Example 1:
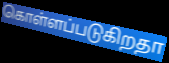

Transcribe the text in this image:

கொள்ளப்படுகிறதா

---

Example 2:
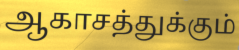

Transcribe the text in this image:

ஆகாசத்துக்கும்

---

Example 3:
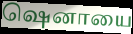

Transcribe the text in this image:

ஷெனாயை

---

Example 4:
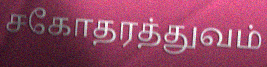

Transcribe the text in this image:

சகோதரத்துவம்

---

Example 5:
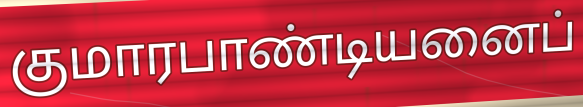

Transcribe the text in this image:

குமாரபாண்டியனைப்